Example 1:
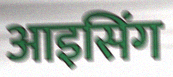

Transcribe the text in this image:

आइसिंग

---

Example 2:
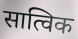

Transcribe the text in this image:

सात्विक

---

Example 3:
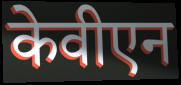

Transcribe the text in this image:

केवीएन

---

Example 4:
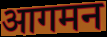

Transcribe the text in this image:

आगमन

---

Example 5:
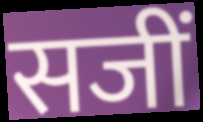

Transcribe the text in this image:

सजीं